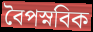
বৈপস্নবিক